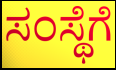
ಸಂಸ್ಥೆಗೆ